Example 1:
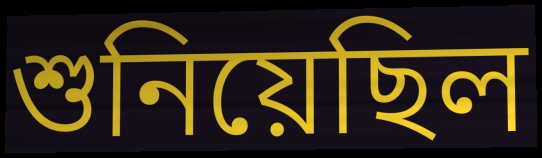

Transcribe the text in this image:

শুনিয়েছিল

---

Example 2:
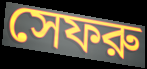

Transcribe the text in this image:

সেফরু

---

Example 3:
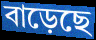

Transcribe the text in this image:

বাড়েছে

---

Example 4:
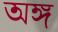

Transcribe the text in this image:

অঙ্গ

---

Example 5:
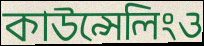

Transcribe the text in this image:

কাউন্সেলিংও